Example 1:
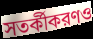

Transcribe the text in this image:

সতর্কীকরণও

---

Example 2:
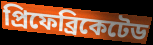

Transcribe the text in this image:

প্রিফেব্রিকেটেড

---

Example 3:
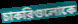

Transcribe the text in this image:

চাকরিগুলোকে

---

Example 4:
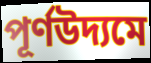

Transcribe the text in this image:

পূর্ণউদ্যমে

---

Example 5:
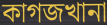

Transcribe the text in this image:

কাগজখানা